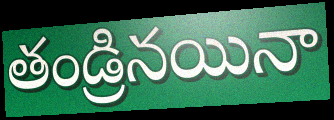
తండ్రినయినా